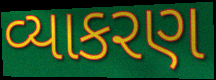
વ્યાકરણ